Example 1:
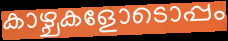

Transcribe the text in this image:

കാഴ്ചകളോടൊപ്പം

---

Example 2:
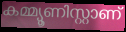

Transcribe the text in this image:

കമ്മ്യൂണിസ്റ്റാണ്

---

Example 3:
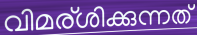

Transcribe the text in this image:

വിമര്ശിക്കുന്നത്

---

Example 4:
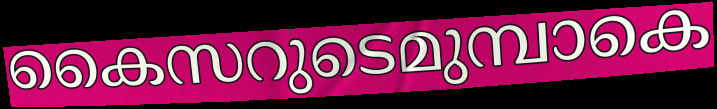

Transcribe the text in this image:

കൈസറുടെമുമ്പാകെ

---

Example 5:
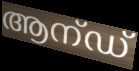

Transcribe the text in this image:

ആന്ഡ്